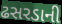
ઢસરડાની